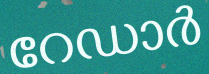
റേഡാർ